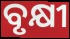
ବୃକ୍ଷୀ